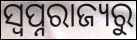
ସ୍ୱପ୍ନରାଜ୍ୟରୁ